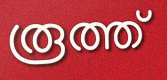
രൂത്ത്